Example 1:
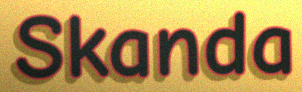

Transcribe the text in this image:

Skanda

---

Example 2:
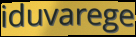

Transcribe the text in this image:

iduvarege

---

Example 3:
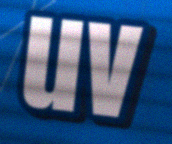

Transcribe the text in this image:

uv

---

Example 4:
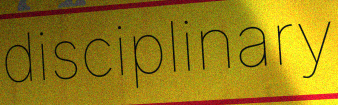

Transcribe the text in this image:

disciplinary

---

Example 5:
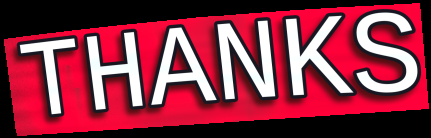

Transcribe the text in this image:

THANKS